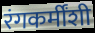
रंगकर्मींशी